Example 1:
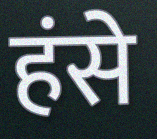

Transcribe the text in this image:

हंसे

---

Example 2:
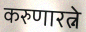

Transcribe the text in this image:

करुणारत्ने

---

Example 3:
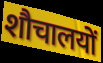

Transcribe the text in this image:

शौचालयों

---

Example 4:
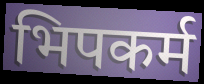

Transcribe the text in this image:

भिपकर्म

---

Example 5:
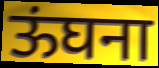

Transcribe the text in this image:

ऊंघना